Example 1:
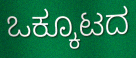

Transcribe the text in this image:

ಒಕ್ಕೂಟದ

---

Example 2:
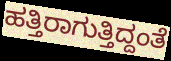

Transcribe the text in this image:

ಹತ್ತಿರಾಗುತ್ತಿದ್ದಂತೆ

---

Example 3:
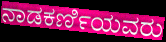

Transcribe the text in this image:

ನಾಡಕರ್ಣಿಯವರು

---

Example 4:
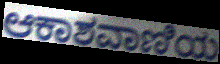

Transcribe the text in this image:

ಆಕಾಶವಾಣಿಯ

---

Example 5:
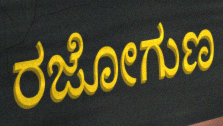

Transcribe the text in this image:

ರಜೋಗುಣ